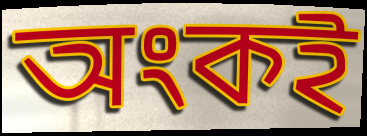
অংকই